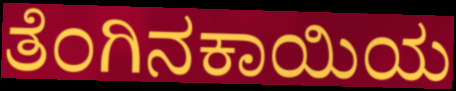
ತೆಂಗಿನಕಾಯಿಯ